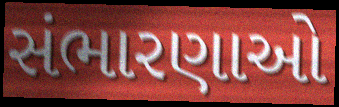
સંભારણાઓ